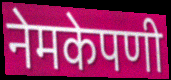
नेमकेपणी